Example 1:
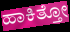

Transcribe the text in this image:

ಹಾಕಿತ್ತೋ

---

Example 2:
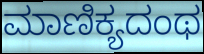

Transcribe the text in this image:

ಮಾಣಿಕ್ಯದಂಥ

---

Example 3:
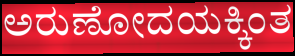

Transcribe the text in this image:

ಅರುಣೋದಯಕ್ಕಿಂತ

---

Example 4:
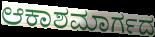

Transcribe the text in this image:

ಆಕಾಶಮಾರ್ಗದ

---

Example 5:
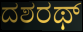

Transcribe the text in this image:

ದಶರಥ್